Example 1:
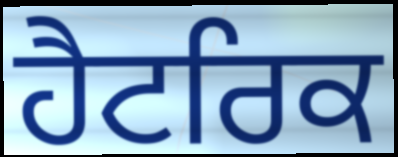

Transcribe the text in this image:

ਹੈਟਰਿਕ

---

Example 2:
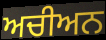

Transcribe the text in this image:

ਅਚੀਅਨ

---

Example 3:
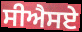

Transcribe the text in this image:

ਸੀਐਸਏ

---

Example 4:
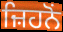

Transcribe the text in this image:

ਜ਼ਿਹਨੋਂ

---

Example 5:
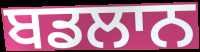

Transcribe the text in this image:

ਬਡਲਾਨ